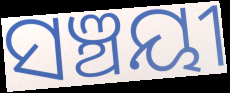
ସଞ୍ଚୟୀ